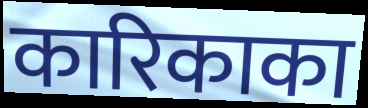
कारिकाका